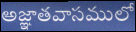
అజ్ఞాతవాసములో